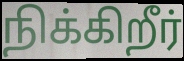
நிக்கிறீர்